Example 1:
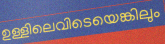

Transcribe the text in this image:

ഉള്ളിലെവിടെയെങ്കിലും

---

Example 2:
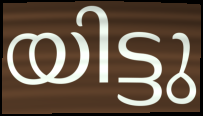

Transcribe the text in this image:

യിട്ടു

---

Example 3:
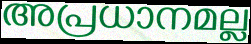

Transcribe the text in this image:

അപ്രധാനമല്ല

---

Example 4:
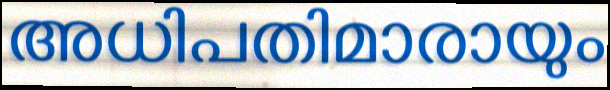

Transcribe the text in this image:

അധിപതിമാരായും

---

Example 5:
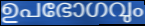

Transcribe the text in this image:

ഉപഭോഗവും